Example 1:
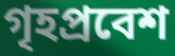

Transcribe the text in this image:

গৃহপ্রবেশ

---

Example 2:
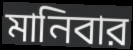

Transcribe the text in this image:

মানিবার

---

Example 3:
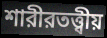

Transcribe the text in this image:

শারীরতত্ত্বীয়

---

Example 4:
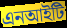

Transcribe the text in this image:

এনআইটি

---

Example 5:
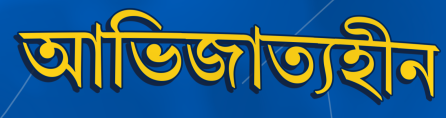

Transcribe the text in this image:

আভিজাত্যহীন